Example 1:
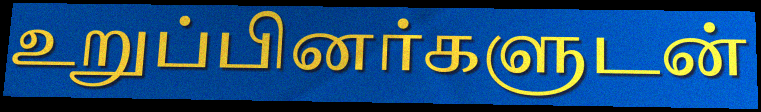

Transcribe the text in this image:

உறுப்பினர்களுடன்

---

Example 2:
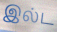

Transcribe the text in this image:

இல்ட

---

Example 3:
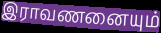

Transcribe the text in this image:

இராவணனையும்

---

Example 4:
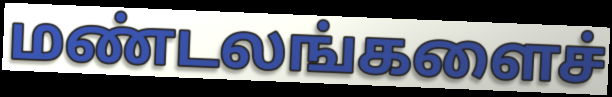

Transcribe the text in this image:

மண்டலங்களைச்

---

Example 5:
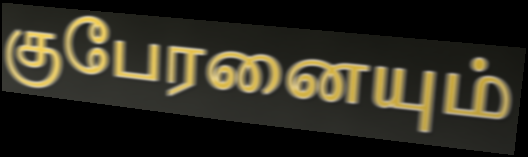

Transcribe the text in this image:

குபேரனையும்